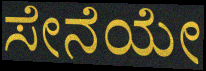
ಸೇನೆಯೇ